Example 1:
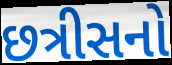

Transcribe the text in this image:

છત્રીસનો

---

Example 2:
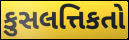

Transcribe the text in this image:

કુસલત્તિકતો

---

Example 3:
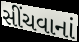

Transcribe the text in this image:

સીંચવાનાં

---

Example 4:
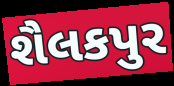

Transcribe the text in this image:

શૈલકપુર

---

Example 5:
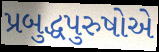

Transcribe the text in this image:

પ્રબુદ્ધપુરુષોએ